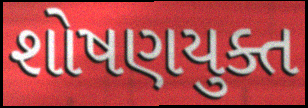
શોષણયુક્ત